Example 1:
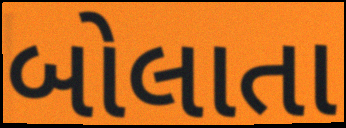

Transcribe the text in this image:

બોલાતા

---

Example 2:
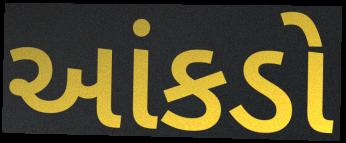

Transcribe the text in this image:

આંકડો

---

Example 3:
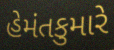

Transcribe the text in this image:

હેમંતકુમારે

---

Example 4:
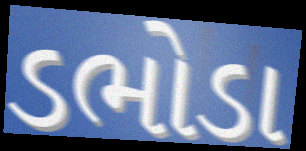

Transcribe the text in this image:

ડભોડા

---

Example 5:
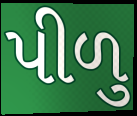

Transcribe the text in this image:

પીળુ